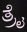
ತ್ರೈ